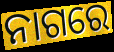
ନାଗରେ